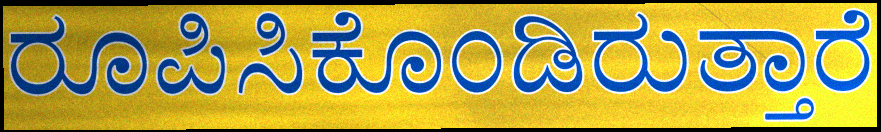
ರೂಪಿಸಿಕೊಂಡಿರುತ್ತಾರೆ